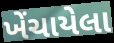
ખેંચાયેલા